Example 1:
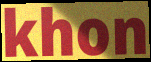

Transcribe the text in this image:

khon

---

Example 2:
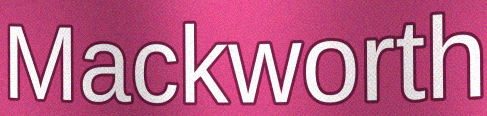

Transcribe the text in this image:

Mackworth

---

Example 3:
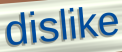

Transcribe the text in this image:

dislike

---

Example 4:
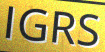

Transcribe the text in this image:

IGRS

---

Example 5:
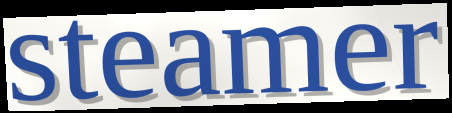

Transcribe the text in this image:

steamer